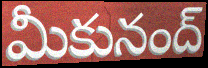
మీకునంద్